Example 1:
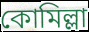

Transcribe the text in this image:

কোমিল্লা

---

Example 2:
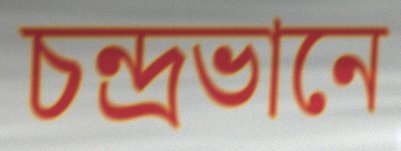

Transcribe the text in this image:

চন্দ্ৰভানে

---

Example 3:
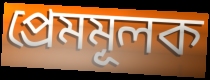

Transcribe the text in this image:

প্ৰেমমূলক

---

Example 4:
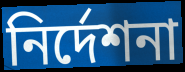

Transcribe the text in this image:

নিৰ্দেশনা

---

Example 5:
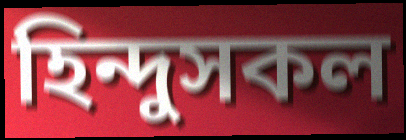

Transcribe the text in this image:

হিন্দুসকল